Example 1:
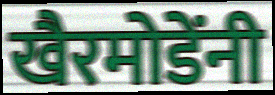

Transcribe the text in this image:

खैरमोडेंनी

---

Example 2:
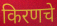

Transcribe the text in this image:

किरणचे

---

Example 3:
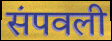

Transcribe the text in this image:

संपवली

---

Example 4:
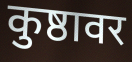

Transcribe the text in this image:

कुष्ठावर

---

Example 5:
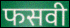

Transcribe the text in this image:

फसवी